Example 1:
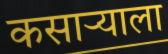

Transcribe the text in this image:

कसाऱ्याला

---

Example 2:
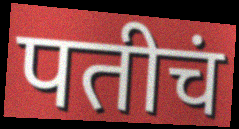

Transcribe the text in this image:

पतीचं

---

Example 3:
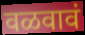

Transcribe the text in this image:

वळवावं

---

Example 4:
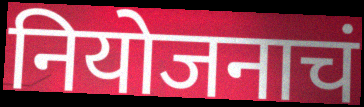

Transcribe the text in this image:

नियोजनाचं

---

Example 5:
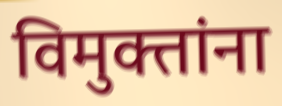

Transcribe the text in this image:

विमुक्तांना